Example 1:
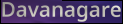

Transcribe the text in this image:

Davanagare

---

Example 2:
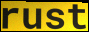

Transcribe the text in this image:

rust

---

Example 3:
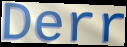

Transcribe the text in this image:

Derr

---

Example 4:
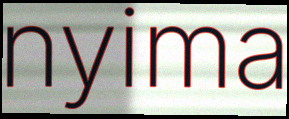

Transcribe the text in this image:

nyima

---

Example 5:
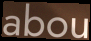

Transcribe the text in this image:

abou